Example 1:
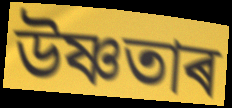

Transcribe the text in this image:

উষ্ণতাৰ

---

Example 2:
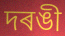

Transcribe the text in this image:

দৰঙী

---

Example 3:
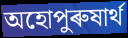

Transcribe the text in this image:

অহোপুৰুষাৰ্থ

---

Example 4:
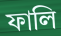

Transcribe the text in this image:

ফালি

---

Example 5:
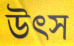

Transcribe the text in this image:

উৎস